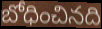
బోధించినది